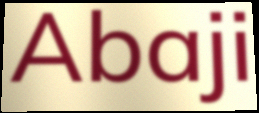
Abaji